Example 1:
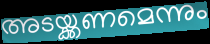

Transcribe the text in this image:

അടയ്ക്കണമെന്നും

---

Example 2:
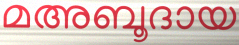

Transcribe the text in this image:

മഅബൂദായ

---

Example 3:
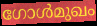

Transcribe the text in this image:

ഗോൾമുഖം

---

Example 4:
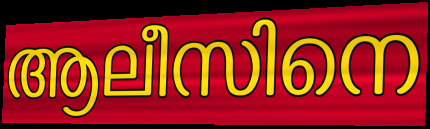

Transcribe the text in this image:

ആലീസിനെ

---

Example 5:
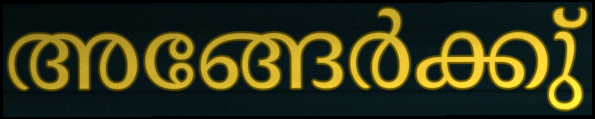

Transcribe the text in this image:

അങ്ങേർക്കു്